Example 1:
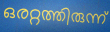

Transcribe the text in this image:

ഒരറ്റത്തിരുന്ന്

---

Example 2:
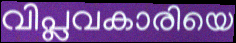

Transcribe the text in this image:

വിപ്ലവകാരിയെ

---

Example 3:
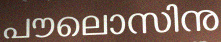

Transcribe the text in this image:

പൗലൊസിനു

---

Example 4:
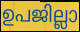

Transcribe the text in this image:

ഉപജില്ലാ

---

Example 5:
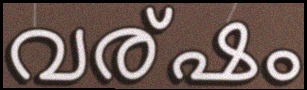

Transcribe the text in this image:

വര്ഷം